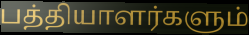
பத்தியாளர்களும்